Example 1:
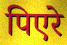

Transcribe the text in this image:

पिएरे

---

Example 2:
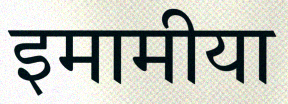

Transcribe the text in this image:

इमामीया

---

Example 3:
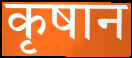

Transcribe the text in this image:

कृषान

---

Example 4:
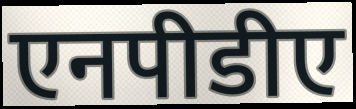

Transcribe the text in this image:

एनपीडीए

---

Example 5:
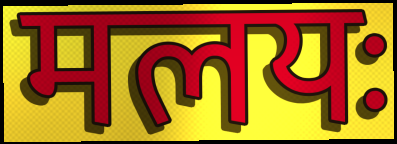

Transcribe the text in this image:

मलयः